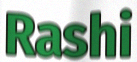
Rashi